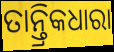
ତାନ୍ତ୍ରିକଧାରା